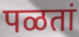
पळतां